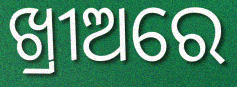
ଖ୍ରୀଅରେ